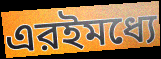
এরইমধ্যে